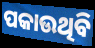
ପକାଉଥିବି